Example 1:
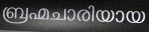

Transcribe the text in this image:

ബ്രഹ്മചാരിയായ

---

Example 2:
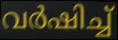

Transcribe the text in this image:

വർഷിച്ച്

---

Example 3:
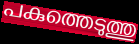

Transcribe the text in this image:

പകുത്തെടുത്തു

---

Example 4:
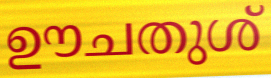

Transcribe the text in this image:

ഊചതുശ്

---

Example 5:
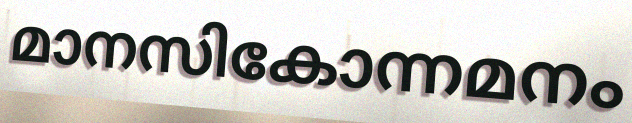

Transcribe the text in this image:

മാനസികോന്നമനം